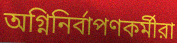
অগ্নিনির্বাপণকর্মীরা